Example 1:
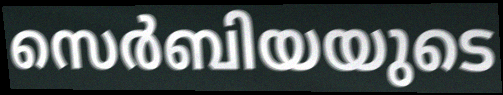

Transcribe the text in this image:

സെർബിയയുടെ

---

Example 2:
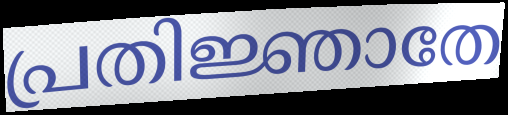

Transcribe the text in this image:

പ്രതിജ്ഞാതേ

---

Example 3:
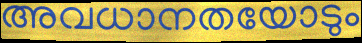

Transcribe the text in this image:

അവധാനതയോടും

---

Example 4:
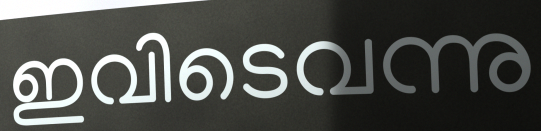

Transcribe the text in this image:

ഇവിടെവന്നു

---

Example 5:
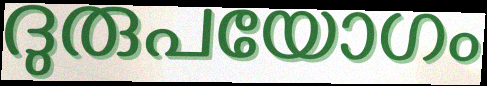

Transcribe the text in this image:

ദുരുപയോഗം